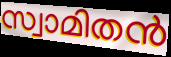
സ്വാമിതൻ